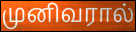
முனிவரால்